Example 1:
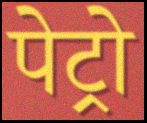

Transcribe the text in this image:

पेट्रो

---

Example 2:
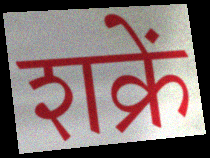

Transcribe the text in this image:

शक्रें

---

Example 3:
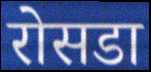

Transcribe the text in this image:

रोसडा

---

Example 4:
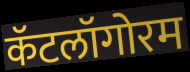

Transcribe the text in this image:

कॅटलॉगोरम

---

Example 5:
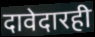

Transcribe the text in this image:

दावेदारही